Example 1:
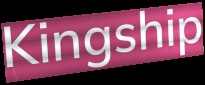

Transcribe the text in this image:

Kingship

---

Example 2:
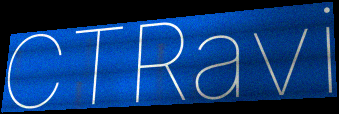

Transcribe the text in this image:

CTRavi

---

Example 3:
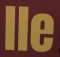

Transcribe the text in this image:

lle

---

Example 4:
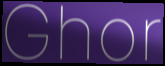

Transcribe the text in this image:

Ghor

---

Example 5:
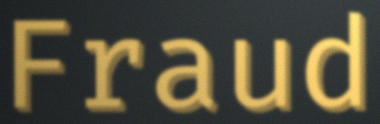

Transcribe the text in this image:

Fraud